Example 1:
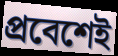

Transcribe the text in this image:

প্রবেশেই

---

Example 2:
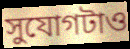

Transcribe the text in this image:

সুযোগটাও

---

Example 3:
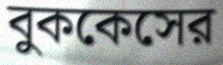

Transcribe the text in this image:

বুককেসের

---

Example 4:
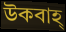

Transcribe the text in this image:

উকবাহ্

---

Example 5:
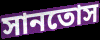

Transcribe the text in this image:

সানতোস